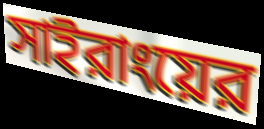
সাইরাংয়ের